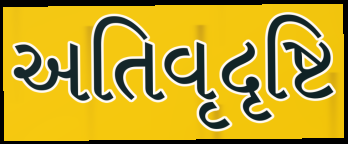
અતિવૃદૃષ્ટિ